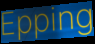
Epping